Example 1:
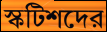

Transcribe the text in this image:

স্কটিশদের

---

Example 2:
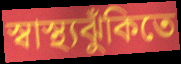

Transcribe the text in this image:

স্বাস্থ্যঝুঁকিতে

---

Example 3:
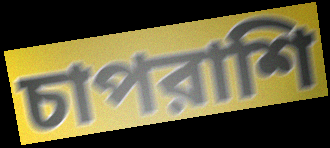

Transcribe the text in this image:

চাপরাশি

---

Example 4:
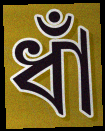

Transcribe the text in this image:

ধাঁ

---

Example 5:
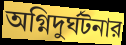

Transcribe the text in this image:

অগ্নিদুর্ঘটনার